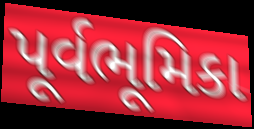
પૂર્વભૂમિકા